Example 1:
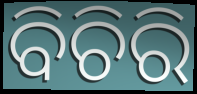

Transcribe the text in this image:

ବିଚିରି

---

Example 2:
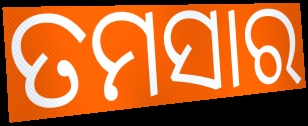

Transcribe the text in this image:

ତମସାର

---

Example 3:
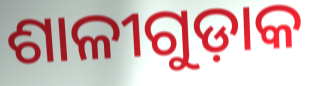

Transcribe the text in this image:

ଶାଳୀଗୁଡ଼ାକ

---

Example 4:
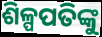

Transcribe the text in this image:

ଶିଳ୍ପପତିଙ୍କୁ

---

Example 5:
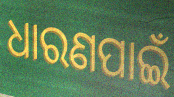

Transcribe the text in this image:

ଧାରଣପାଇଁ